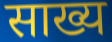
साख्य